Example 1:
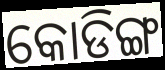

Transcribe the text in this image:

କୋଡିଙ୍ଗ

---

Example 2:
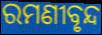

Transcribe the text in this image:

ରମଣୀବୃନ୍ଦ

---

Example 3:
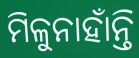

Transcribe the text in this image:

ମିଳୁନାହାଁନ୍ତି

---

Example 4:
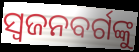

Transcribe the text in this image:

ସ୍ଵଜନବର୍ଗଙ୍କୁ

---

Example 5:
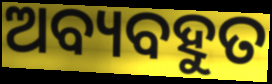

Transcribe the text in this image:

ଅବ୍ୟବହୁତ